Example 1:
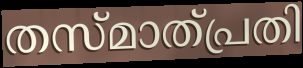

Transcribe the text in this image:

തസ്മാത്പ്രതി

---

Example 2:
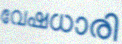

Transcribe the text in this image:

വേഷധാരി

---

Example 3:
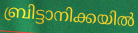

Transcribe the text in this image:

ബ്രിട്ടാനിക്കയിൽ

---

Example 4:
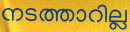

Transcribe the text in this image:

നടത്താറില്ല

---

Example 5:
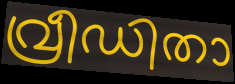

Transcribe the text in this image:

വ്രീഡിതാ